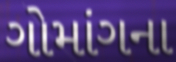
ગોમાંગના